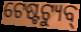
ଟେଷ୍ଟଟ୍ୟୁବ୍